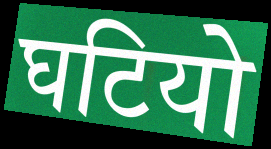
घटियो